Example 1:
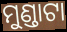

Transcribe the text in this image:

ମୁଣ୍ଡାଟା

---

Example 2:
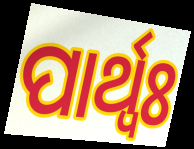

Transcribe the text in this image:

ପାର୍ଥ୍ବଃ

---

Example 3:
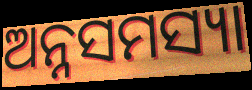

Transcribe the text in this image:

ଅନ୍ନସମସ୍ୟା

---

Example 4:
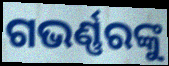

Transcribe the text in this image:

ଗଭର୍ଣ୍ଣରଙ୍କୁ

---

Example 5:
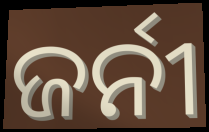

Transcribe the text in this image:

ଜର୍ନୀ